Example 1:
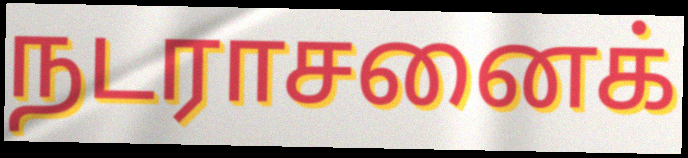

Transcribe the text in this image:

நடராசனைக்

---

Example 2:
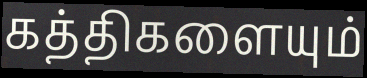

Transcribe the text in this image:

கத்திகளையும்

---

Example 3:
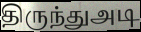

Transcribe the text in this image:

திருந்துஅடி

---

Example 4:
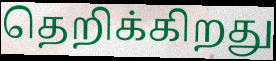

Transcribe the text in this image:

தெறிக்கிறது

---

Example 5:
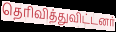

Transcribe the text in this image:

தெரிவித்துவிட்டனர்